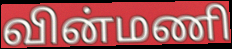
வின்மணி